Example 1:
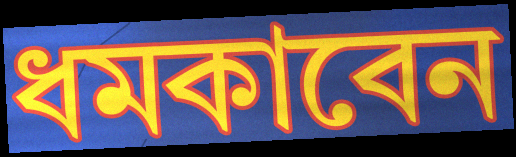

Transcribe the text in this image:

ধমকাবেন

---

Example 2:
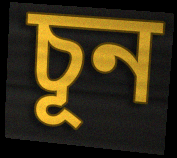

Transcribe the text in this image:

চূন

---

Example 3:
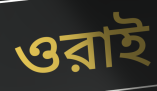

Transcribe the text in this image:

ওরাই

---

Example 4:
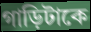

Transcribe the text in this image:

গাড়িটাকে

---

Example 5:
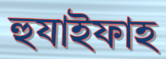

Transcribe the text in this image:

হুযাইফাহ